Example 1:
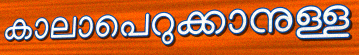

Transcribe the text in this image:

കാലാപെറുക്കാനുള്ള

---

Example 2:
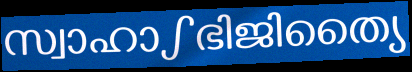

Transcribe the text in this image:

സ്വാഹാഽഭിജിത്യൈ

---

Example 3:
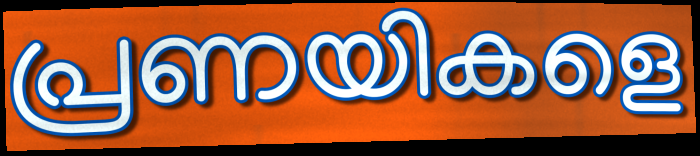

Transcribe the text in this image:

പ്രണയികളെ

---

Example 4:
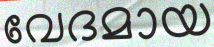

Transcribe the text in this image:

വേദമായ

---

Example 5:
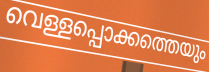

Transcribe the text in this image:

വെള്ളപ്പൊക്കത്തെയും